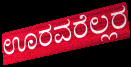
ಊರವರೆಲ್ಲರ